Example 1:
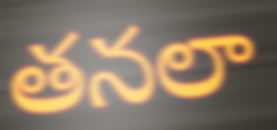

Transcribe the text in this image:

తనలా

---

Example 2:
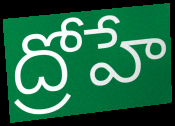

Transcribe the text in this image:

ద్రోహే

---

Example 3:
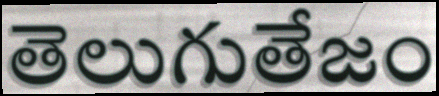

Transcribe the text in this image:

తెలుగుతేజం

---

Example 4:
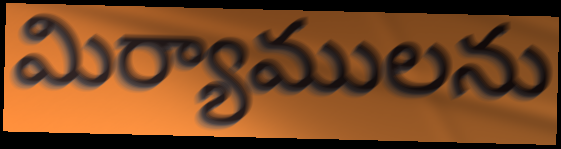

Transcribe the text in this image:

మిర్యాములను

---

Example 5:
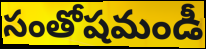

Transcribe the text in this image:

సంతోషమండీ